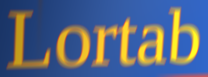
Lortab